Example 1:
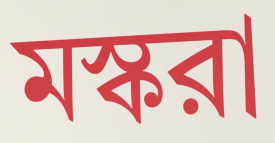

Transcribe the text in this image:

মস্করা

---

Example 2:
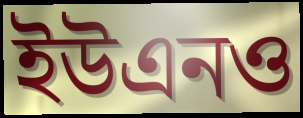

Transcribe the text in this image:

ইউএনও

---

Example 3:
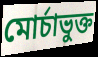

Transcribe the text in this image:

মোর্চাভুক্ত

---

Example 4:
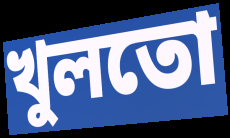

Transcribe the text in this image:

খুলতো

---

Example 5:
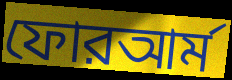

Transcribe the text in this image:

ফোরআর্ম